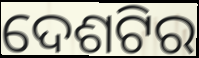
ଦେଶଟିର